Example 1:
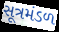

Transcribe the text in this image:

સૂત્રમંડળ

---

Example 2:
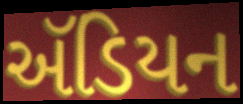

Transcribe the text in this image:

ઍંડિયન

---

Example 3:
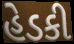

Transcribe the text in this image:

હેડકી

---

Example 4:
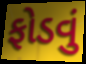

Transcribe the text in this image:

ફોડવું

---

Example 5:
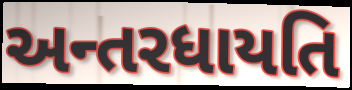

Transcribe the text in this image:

અન્તરધાયતિ